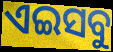
ଏଇସବୁ